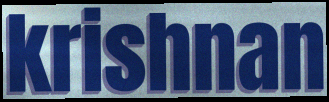
krishnan